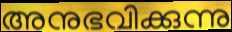
അനുഭവിക്കുന്നു